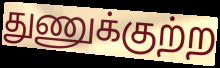
துணுக்குற்ற